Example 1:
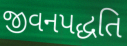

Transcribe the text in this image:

જીવનપદ્ધતિ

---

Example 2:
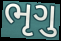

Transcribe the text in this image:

ભૃગુ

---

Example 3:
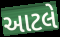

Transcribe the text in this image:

આટલે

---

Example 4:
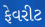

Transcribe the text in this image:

ફેવરીટ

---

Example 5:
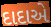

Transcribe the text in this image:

દાદાએ